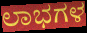
ಲಾಭಗಳ